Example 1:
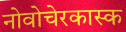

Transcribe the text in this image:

नोवोचेरकास्क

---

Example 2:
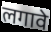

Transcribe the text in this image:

लगावे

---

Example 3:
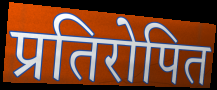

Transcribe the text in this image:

प्रतिरोपित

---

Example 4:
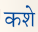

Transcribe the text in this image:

कशे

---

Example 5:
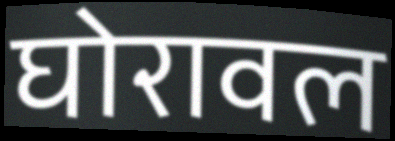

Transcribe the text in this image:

घोरावल